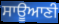
ਸਾਊਆਣੀ